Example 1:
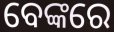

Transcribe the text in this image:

ବେଙ୍କରେ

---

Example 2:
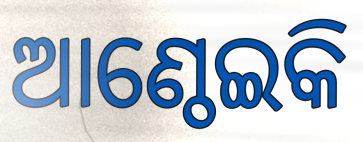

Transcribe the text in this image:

ଆଣ୍ଠେଇକି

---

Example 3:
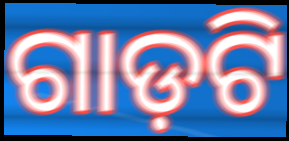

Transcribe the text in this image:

ଗାଡ଼ଟି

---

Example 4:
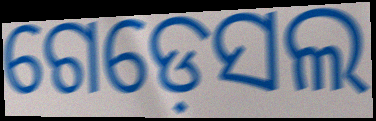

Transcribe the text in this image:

ଗେଡ଼େସଲ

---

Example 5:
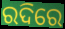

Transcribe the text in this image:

ରଦିରେ